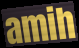
amih